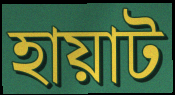
হায়াট